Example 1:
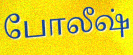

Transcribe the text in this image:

போலீஷ்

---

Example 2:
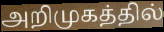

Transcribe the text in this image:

அறிமுகத்தில்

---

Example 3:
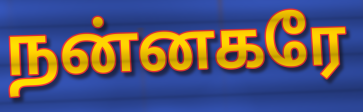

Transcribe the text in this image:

நன்னகரே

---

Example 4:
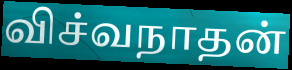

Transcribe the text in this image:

விச்வநாதன்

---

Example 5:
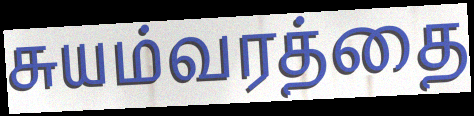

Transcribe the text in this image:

சுயம்வரத்தை